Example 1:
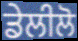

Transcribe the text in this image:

ਡੇਲੀਲੋ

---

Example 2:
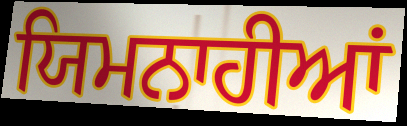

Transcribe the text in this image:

ਯਿਮਨਾਹੀਆਂ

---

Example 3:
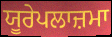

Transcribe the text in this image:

ਯੂਰੇਪਲਾਜ਼ਮਾ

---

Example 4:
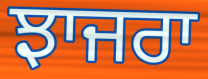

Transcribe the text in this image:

ਝਾਜਰਾ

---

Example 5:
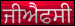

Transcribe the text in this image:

ਜੀਐਫਸੀ